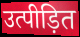
उत्पीड़ित